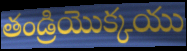
తండ్రియొక్కయు